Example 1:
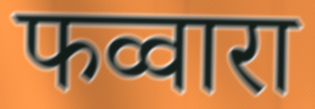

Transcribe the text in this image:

फव्वारा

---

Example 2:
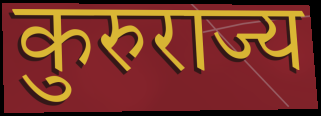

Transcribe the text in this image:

कुरुराज्य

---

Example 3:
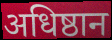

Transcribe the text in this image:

अधिष्ठान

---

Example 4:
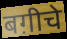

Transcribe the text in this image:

बग़ीचे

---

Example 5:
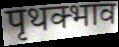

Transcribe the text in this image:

पृथक्भाव